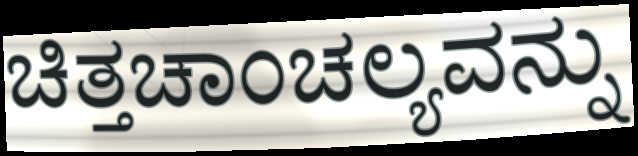
ಚಿತ್ತಚಾಂಚಲ್ಯವನ್ನು